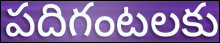
పదిగంటలకు